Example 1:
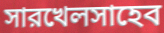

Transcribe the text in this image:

সারখেলসাহেব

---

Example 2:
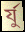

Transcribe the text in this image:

র্যু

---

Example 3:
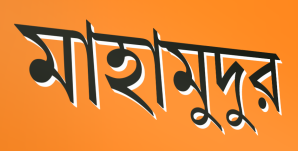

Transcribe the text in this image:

মাহামুদুর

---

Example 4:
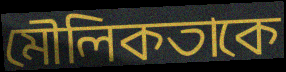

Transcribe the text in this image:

মৌলিকতাকে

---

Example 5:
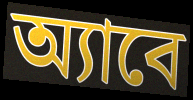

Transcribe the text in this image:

অ্যাবে